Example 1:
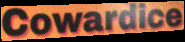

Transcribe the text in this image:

Cowardice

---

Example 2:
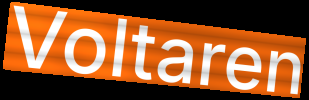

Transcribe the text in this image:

Voltaren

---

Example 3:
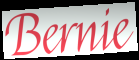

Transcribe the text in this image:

Bernie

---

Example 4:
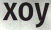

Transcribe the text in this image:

xoy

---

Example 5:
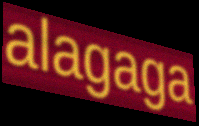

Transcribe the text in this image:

alagaga